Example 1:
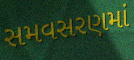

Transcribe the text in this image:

સમવસરણમાં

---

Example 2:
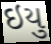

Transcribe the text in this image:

ઇયુ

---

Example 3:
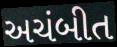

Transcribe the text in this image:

અચંબીત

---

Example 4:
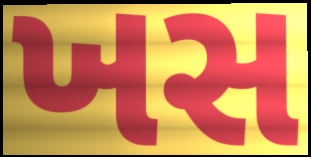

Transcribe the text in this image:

ખસ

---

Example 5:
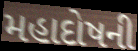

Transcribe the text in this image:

મહાદોષની